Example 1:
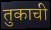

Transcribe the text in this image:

तुकाची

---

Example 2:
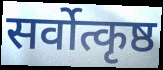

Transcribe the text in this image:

सर्वोत्कृष्ठ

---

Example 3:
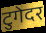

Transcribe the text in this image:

टुगेदर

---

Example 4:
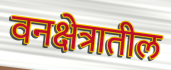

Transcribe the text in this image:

वनक्षेत्रातील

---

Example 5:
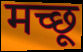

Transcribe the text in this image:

मच्छू